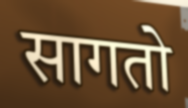
सागतो